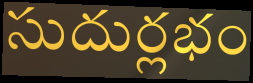
సుదుర్లభం